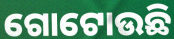
ଗୋଟୋଉଛି